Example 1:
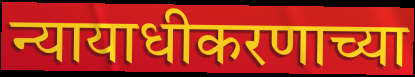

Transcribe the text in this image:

न्यायाधीकरणाच्या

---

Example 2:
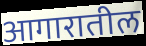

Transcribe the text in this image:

आगारातील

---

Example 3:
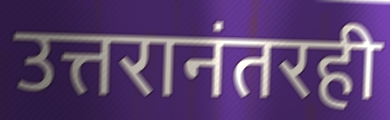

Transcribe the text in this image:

उत्तरानंतरही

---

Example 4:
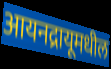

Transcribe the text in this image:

आयनद्रायूमधील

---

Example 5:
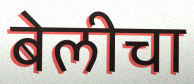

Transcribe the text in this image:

बेलीचा